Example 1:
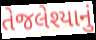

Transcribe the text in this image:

તેજલેશ્યાનું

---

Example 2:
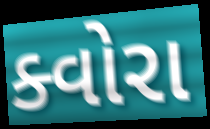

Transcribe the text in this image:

ક્વોરા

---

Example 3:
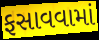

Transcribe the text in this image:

ફસાવવામાં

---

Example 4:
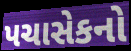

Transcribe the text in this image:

પચાસેકનો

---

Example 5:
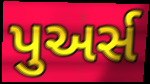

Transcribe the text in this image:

પુઅર્સ